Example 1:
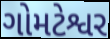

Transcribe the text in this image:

ગોમટેશ્વર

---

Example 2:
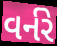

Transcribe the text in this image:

વર્નરે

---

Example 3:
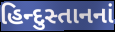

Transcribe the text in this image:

હિન્દુસ્તાનનાં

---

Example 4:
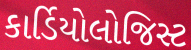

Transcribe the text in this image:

કાર્ડિયોલોજિસ્ટ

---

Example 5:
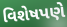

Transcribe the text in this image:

વિશેષપણે